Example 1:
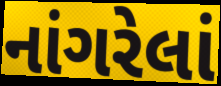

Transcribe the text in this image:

નાંગરેલાં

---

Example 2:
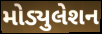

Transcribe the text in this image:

મોડ્યુલેશન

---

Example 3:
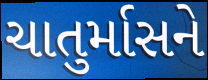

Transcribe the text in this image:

ચાતુર્માસને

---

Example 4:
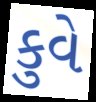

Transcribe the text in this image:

કુવે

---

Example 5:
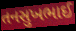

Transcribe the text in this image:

તનસુખભાઈ